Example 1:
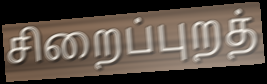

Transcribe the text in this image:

சிறைப்புறத்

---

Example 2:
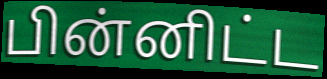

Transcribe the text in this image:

பின்னிட்ட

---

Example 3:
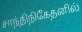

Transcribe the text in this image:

சாந்திநிகேதனில்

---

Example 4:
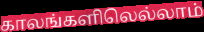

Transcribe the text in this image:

காலங்களிலெல்லாம்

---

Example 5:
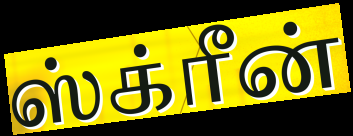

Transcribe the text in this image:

ஸ்க்ரீன்